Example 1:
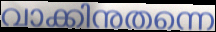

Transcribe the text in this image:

വാക്കിനുതന്നെ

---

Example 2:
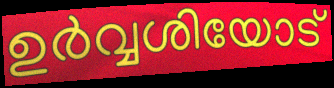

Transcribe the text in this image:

ഉർവ്വശിയോട്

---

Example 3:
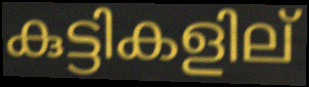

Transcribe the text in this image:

കുട്ടികളില്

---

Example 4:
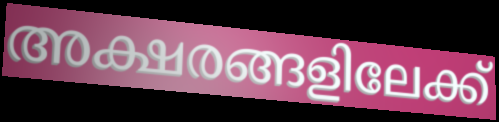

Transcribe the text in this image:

അക്ഷരങ്ങളിലേക്ക്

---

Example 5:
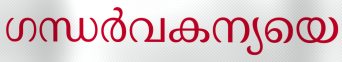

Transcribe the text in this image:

ഗന്ധർവകന്യയെ